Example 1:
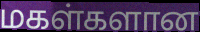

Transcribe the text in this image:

மகள்களான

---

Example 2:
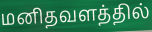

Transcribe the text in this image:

மனிதவளத்தில்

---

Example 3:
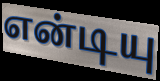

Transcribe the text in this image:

என்டியு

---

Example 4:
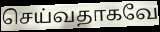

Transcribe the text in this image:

செய்வதாகவே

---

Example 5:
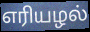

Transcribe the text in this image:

எரியழல்